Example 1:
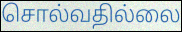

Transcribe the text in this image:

சொல்வதில்லை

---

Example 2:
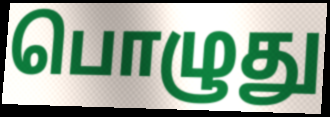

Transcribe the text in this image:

பொழுது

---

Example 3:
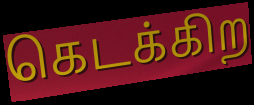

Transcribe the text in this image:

கெடக்கிற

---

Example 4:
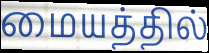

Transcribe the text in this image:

மையத்தில்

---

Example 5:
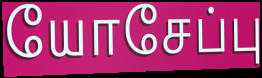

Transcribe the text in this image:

யோசேப்பு